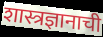
शास्त्रज्ञानाची